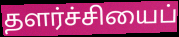
தளர்ச்சியைப்